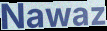
Nawaz